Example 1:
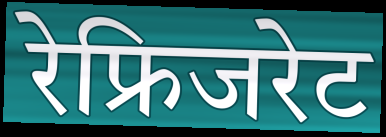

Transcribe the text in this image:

रेफ्रिजरेट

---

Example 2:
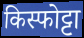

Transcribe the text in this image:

किस्फोट्टा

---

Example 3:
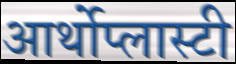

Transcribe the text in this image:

आर्थोप्लास्टी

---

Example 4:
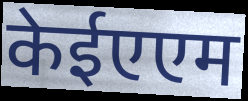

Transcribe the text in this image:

केईएएम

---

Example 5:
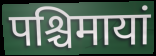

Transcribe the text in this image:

पश्चिमायां